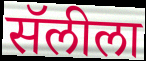
सॅलीला